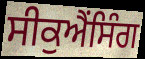
ਸੀਕੁਐਂਸਿੰਗ